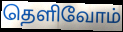
தெளிவோம்